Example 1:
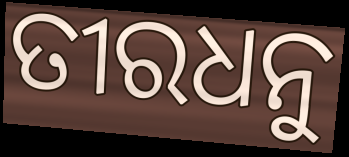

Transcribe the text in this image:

ତୀରଧନୁ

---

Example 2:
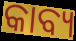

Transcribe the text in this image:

କାବ୍ୟ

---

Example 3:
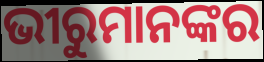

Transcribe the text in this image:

ଭୀରୁମାନଙ୍କର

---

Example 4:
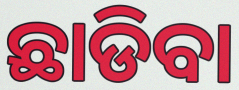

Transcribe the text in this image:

ଛାଡିବା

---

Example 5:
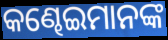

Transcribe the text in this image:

କଣ୍ଢେଇମାନଙ୍କ